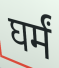
घर्मं